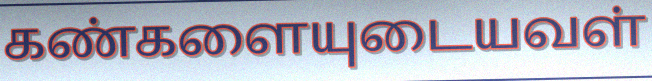
கண்களையுடையவள்